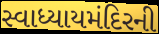
સ્વાધ્યાયમંદિરની